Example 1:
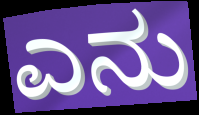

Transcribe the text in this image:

ಎನು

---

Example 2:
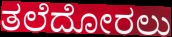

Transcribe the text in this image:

ತಲೆದೋರಲು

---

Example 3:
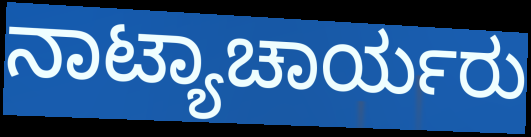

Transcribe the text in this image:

ನಾಟ್ಯಾಚಾರ್ಯರು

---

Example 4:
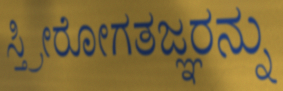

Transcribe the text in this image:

ಸ್ತ್ರೀರೋಗತಜ್ಞರನ್ನು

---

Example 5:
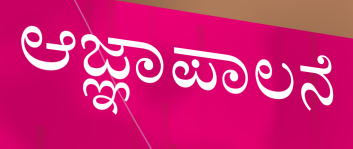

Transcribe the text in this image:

ಆಜ್ಞಾಪಾಲನೆ